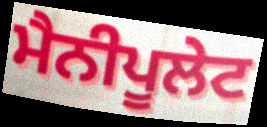
ਮੈਨੀਪੂਲੇਟ